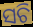
ସଚି